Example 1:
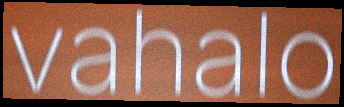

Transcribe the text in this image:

vahalo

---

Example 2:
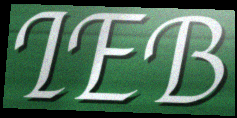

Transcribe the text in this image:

IEB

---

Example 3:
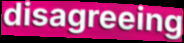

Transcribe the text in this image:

disagreeing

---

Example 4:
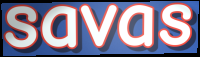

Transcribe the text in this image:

savas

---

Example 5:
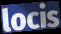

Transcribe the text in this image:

locis